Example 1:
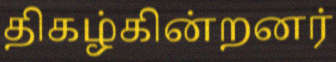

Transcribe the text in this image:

திகழ்கின்றனர்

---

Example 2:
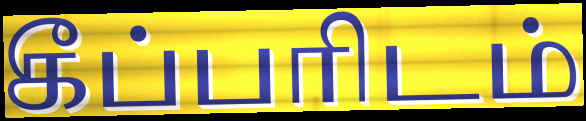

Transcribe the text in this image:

கீப்பரிடம்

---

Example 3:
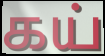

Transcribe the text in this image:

கய்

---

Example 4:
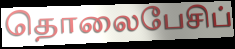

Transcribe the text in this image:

தொலைபேசிப்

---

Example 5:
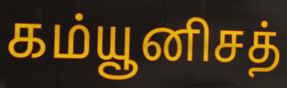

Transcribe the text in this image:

கம்யூனிசத்